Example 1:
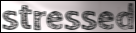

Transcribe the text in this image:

stressed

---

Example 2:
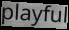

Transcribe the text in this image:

playful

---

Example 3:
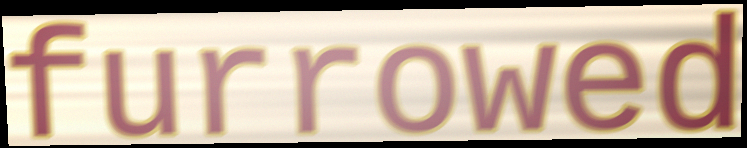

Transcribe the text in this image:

furrowed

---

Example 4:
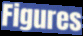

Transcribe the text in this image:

Figures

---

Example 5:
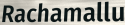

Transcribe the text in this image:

Rachamallu